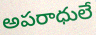
అపరాధులే